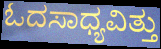
ಓದಸಾಧ್ಯವಿತ್ತು